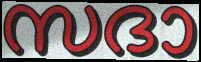
സദാ